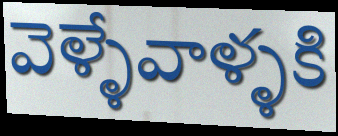
వెళ్ళేవాళ్ళకి